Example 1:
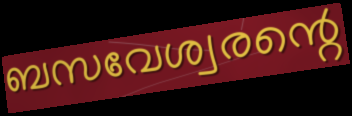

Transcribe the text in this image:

ബസവേശ്വരന്റെ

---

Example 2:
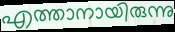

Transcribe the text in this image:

എത്താനായിരുന്നു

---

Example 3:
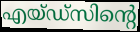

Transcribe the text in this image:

എയ്ഡ്സിന്റെ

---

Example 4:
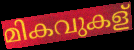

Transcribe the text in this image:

മികവുകള്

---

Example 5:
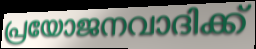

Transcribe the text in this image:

പ്രയോജനവാദിക്ക്